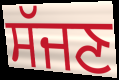
ਸੱਜਣ